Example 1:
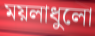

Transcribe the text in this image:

ময়লাধুলো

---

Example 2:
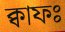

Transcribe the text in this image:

ক্বাফঃ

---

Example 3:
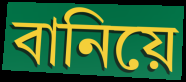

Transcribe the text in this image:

বানিয়ে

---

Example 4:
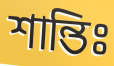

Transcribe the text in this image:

শান্তিঃ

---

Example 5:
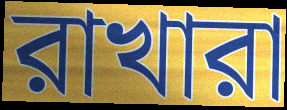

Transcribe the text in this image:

রাখারা